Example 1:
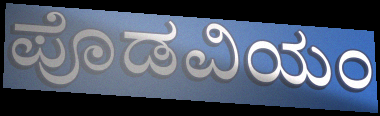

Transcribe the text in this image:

ಪೊಡವಿಯಂ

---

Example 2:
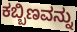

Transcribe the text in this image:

ಕಬ್ಬಿಣವನ್ನು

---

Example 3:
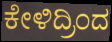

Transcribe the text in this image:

ಕೇಳಿದ್ರಿಂದ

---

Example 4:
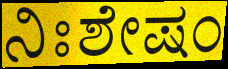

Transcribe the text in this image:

ನಿಃಶೇಷಂ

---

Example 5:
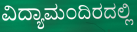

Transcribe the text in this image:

ವಿದ್ಯಾಮಂದಿರದಲ್ಲಿ